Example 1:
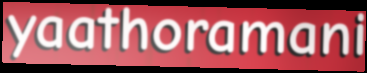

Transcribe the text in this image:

yaathoramani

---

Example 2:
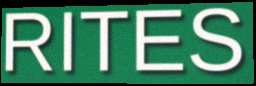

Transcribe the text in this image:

RITES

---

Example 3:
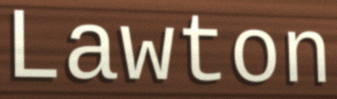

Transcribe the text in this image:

Lawton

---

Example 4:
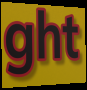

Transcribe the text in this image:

ght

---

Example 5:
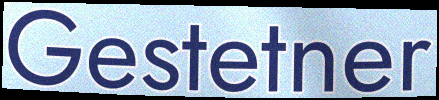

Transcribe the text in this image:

Gestetner